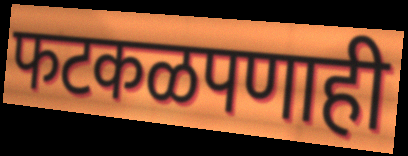
फटकळपणाही